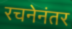
रचनेनंतर